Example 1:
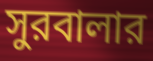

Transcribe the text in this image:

সুরবালার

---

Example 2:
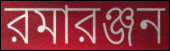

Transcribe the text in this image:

রমারঞ্জন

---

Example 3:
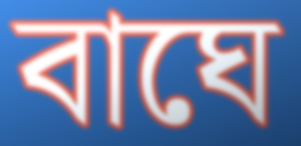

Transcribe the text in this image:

বাঘে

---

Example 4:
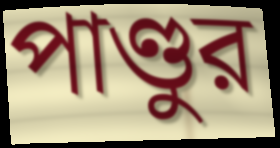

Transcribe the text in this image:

পাণ্ডুর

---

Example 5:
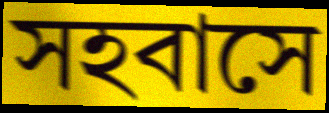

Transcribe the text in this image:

সহবাসে